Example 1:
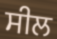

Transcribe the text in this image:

ਸੀਲ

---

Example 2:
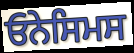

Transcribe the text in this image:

ਓਨੇਸਿਮਸ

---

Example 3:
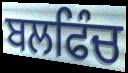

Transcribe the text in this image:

ਬਲਫਿੰਚ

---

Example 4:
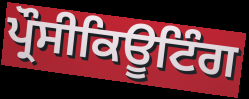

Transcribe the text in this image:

ਪ੍ਰੌਸੀਕਿਊਟਿੰਗ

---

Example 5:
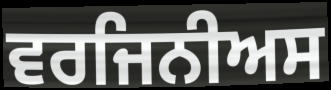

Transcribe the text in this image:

ਵਰਜਿਨੀਅਸ